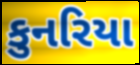
કુનરિયા